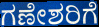
ಗಣೇಶರಿಗೆ